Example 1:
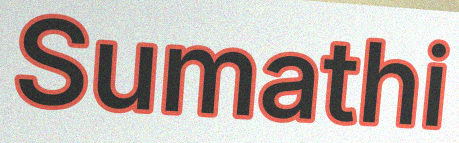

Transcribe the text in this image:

Sumathi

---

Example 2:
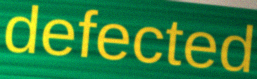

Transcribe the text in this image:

defected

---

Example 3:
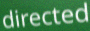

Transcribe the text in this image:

directed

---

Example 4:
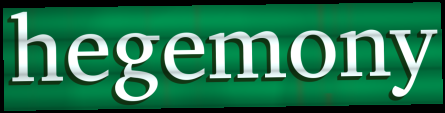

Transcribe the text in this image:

hegemony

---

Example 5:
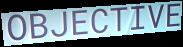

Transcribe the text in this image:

OBJECTIVE